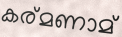
കര്മണാമ്